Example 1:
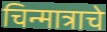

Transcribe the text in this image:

चिन्मात्राचे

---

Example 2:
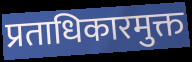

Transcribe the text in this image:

प्रताधिकारमुक्त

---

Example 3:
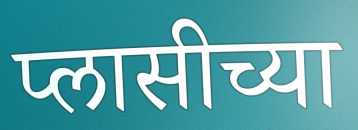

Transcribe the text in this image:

प्लासीच्या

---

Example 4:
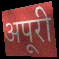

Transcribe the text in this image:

अपूरी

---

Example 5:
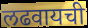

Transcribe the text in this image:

लढवायची